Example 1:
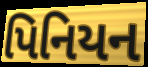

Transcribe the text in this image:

પિનિયન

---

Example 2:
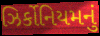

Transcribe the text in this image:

ઝિર્કોનિયમનું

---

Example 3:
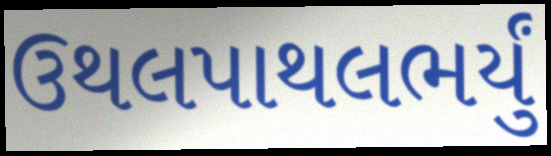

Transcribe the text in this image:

ઉથલપાથલભર્યું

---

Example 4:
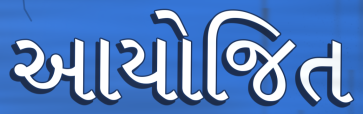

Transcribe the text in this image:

આયોજિત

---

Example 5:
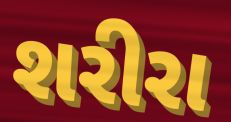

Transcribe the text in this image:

શરીરા